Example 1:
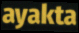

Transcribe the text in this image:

ayakta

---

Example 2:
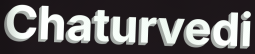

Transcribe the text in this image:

Chaturvedi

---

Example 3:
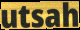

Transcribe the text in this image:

utsah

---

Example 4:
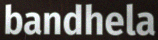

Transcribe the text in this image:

bandhela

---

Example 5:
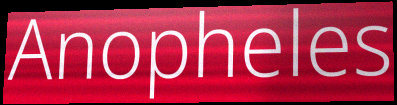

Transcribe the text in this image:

Anopheles